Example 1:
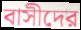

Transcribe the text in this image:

বাসীদের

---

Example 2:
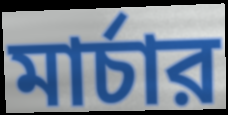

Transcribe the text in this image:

মার্চার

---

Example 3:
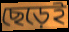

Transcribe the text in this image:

ছেড়েই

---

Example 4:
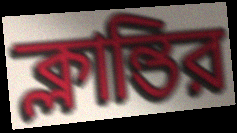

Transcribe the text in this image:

ক্লান্তির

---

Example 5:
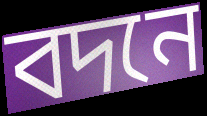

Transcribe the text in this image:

বদনে